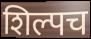
शिल्पच